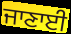
ਜਾਣਾਈ